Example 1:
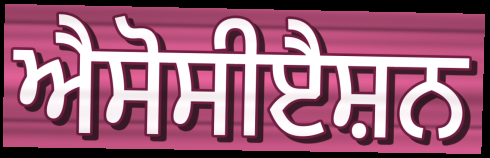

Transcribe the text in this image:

ਐਸੋਸੀੲੈਸ਼ਨ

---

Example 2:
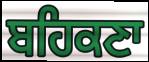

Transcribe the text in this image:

ਬਹਿਕਣਾ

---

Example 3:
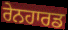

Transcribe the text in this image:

ਰੇਨਹਾਰਡ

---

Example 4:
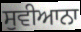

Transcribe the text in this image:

ਸੁਵੀਆਨਾ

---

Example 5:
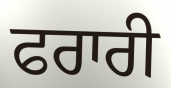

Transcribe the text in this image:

ਫਰਾਰੀ